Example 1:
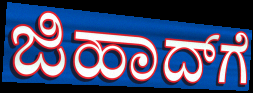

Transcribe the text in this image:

ಜಿಹಾದ್‌ಗೆ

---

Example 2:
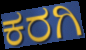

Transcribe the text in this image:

ಕರಗಿ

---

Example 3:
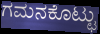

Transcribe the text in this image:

ಗಮನಕೊಟ್ಟು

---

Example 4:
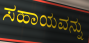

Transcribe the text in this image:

ಸಹಾಯವನ್ನು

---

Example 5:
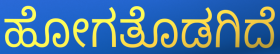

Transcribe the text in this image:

ಹೋಗತೊಡಗಿದೆ